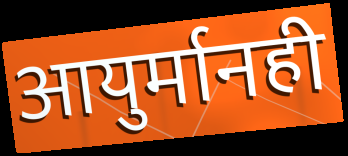
आयुर्मानही